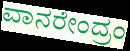
ವಾನರೇಂದ್ರಂ